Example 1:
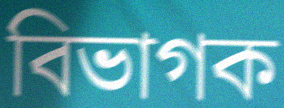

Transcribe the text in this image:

বিভাগক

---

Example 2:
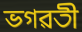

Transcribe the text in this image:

ভগৱতী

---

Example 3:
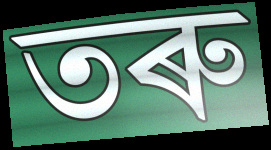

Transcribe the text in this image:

তৰু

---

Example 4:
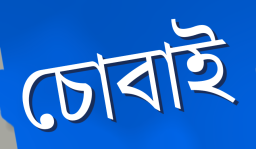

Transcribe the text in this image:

চোবাই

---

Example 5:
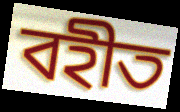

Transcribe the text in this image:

বহীত